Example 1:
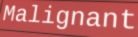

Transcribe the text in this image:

Malignant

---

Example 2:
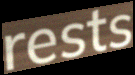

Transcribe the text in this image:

rests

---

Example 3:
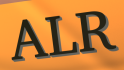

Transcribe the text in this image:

ALR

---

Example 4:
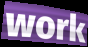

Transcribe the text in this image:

work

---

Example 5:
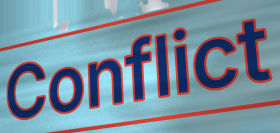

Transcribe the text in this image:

Conflict